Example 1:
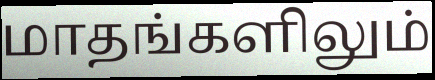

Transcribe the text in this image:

மாதங்களிலும்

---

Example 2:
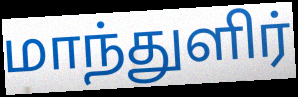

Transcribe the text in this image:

மாந்துளிர்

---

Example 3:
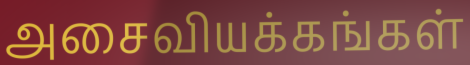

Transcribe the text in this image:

அசைவியக்கங்கள்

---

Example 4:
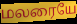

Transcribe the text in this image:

மலரையே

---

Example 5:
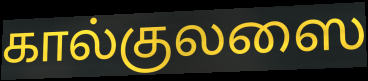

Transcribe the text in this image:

கால்குலஸை